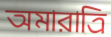
অমারাত্রি